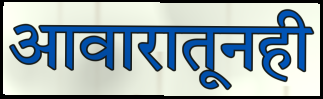
आवारातूनही